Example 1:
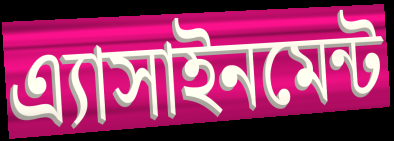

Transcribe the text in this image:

এ্যাসাইনমেন্ট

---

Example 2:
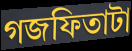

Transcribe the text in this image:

গজফিতাটা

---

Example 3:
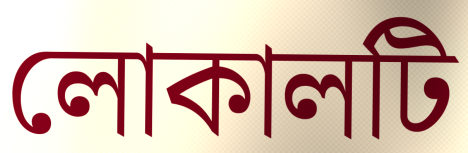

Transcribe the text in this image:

লোকালটি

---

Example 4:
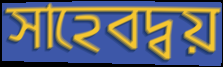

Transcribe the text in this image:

সাহেবদ্বয়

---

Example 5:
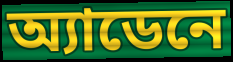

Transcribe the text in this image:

অ্যাডেনে